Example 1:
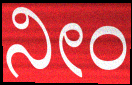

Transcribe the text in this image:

ನೀಂ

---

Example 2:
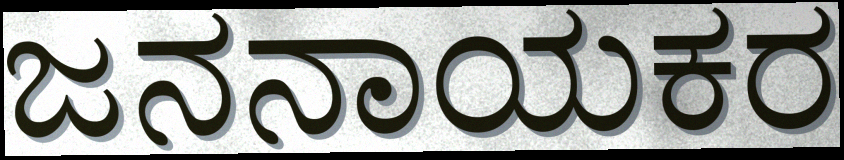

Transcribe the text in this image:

ಜನನಾಯಕರ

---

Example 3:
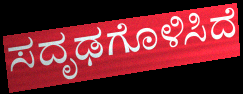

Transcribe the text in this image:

ಸದೃಢಗೊಳಿಸಿದೆ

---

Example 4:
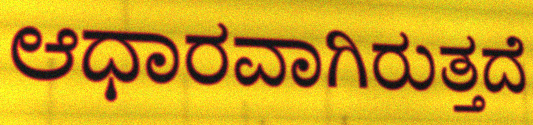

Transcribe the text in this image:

ಆಧಾರವಾಗಿರುತ್ತದೆ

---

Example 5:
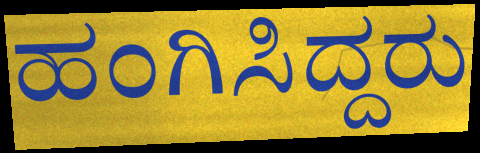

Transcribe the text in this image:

ಹಂಗಿಸಿದ್ದರು